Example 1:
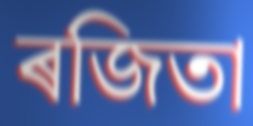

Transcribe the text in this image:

ৰজিতা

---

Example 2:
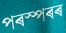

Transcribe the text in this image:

পৰস্পৰৰ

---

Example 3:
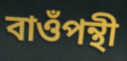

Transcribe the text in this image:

বাওঁপন্থী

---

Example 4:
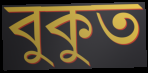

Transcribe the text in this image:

বুকুত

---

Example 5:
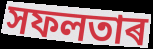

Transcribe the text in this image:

সফলতাৰ